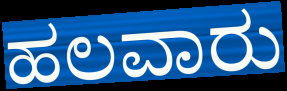
ಹಲವಾರು